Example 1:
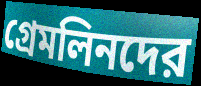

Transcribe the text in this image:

গ্রেমলিনদের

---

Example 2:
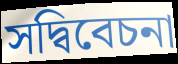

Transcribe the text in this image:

সদ্বিবেচনা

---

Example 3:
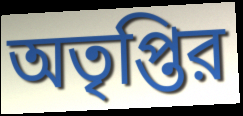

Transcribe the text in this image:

অতৃপ্তির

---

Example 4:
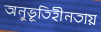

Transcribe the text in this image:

অনুভূতিহীনতায়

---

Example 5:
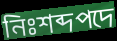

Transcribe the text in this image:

নিঃশব্দপদে